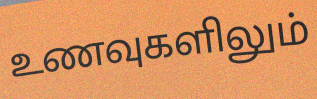
உணவுகளிலும்